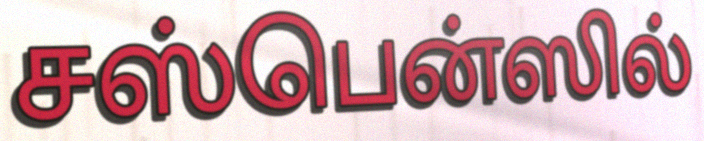
சஸ்பென்ஸில்